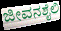
ಜೀವನಶೈಲಿ